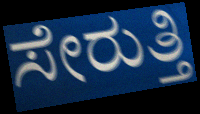
ಸೇರುತ್ತಿ